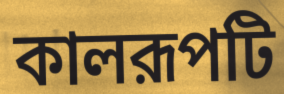
কালরূপটি